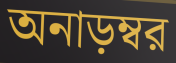
অনাড়ম্বর